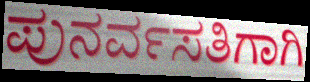
ಪುನರ್ವಸತಿಗಾಗಿ